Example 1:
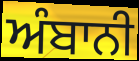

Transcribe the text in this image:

ਅੰਬਾਨੀ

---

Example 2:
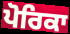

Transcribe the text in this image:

ਪੋਰਿਕਾ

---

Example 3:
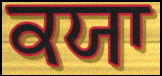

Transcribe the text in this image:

ਕਯਾ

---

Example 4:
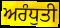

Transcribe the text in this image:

ਅਰੰਧੁਤੀ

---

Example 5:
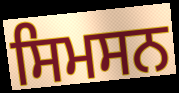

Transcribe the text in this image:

ਸਿਮਸਨ